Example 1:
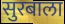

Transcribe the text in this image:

सुरबाला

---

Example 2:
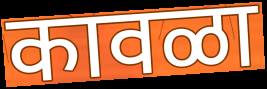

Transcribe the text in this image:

कावळा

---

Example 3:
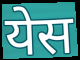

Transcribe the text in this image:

येस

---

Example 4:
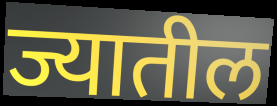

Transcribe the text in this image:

ज्यातील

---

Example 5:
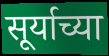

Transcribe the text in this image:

सूर्याच्या